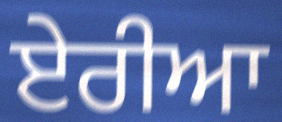
ਏਰੀਆ